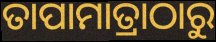
ତାପାମାତ୍ରାଠାରୁ